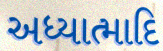
અધ્યાત્માદિ